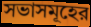
সভাসমূহের